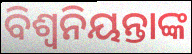
ବିଶ୍ବନିୟନ୍ତାଙ୍କ